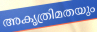
അകൃത്രിമതയും